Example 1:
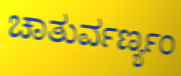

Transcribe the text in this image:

ಚಾತುರ್ವರ್ಣ್ಯಂ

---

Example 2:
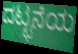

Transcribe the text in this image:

ದಟ್ಟನೆಯ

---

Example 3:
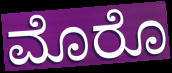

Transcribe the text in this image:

ಮೊರೊ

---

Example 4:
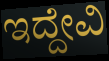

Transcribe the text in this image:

ಇದ್ದೇವಿ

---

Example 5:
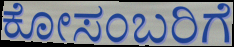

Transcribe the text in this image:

ಕೋಸಂಬರಿಗೆ